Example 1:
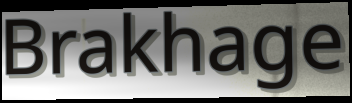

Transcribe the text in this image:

Brakhage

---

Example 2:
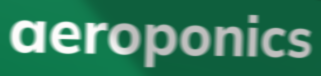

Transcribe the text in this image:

aeroponics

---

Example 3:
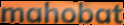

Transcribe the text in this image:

mahobat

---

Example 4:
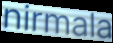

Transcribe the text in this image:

nirmala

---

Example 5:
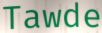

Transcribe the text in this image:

Tawde